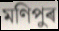
মণিপুৰ